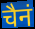
चैनं